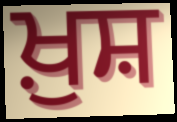
ਖ਼ੁਸ਼